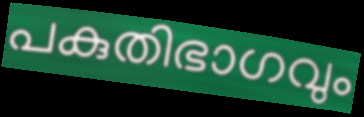
പകുതിഭാഗവും